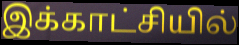
இக்காட்சியில்